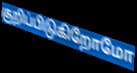
குறிப்பிடுகிறோமோ